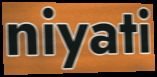
niyati